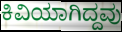
ಕಿವಿಯಾಗಿದ್ದವು